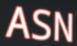
ASN